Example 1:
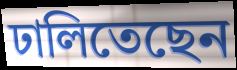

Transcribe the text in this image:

ঢালিতেছেন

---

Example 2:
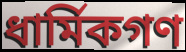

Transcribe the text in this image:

ধার্মিকগণ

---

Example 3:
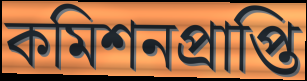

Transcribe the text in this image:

কমিশনপ্রাপ্তি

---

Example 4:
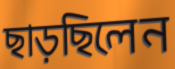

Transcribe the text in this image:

ছাড়ছিলেন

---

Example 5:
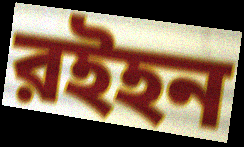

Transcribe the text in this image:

রইহন